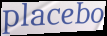
placebo